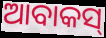
ଆବାକସ୍